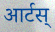
आर्टस्